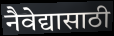
नैवेद्यासाठी